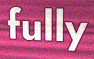
fully